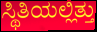
ಸ್ಥಿತಿಯಲ್ಲಿತ್ತು